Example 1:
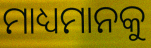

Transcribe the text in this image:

ମାଧ୍ୟମାନକୁ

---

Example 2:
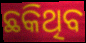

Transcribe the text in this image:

ଛକିଥିବ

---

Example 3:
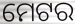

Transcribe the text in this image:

ମେଟର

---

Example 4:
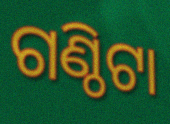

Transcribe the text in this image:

ଗଣ୍ଠିଟା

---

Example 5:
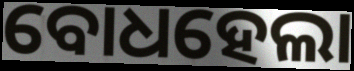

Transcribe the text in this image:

ବୋଧହେଲା